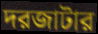
দরজাটার